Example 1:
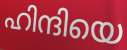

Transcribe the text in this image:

ഹിന്ദിയെ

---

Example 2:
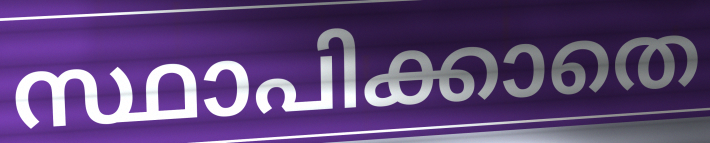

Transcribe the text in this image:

സ്ഥാപിക്കാതെ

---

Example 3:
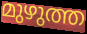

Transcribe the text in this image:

മുഴുത്ത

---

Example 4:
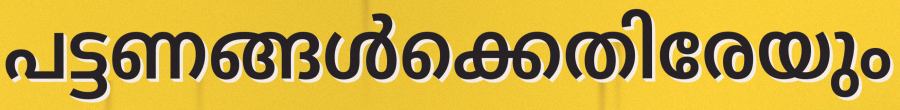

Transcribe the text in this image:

പട്ടണങ്ങൾക്കെതിരേയും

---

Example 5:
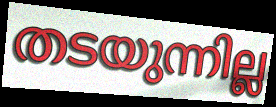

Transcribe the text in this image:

തടയുന്നില്ല